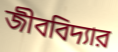
জীববিদ্যার